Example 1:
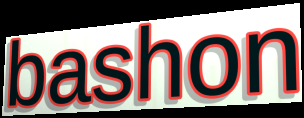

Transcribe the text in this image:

bashon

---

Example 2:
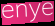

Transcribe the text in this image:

enye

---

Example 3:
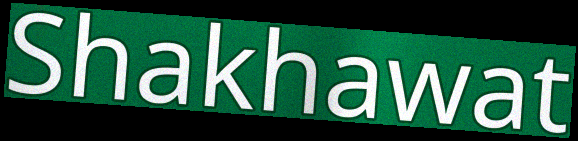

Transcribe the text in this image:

Shakhawat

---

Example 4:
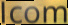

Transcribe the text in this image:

Icom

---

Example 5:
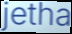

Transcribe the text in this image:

jetha